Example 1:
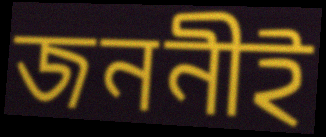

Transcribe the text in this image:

জননীই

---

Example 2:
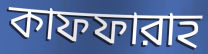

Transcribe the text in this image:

কাফফারাহ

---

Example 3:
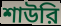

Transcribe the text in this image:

শাউরি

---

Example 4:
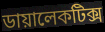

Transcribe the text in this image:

ডায়ালেকটিক্স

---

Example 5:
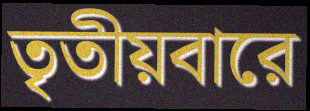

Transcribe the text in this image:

তৃতীয়বারে